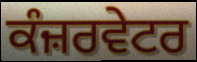
ਕੰਜ਼ਰਵੇਟਰ